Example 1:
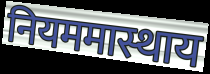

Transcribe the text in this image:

नियममास्थाय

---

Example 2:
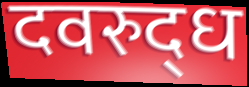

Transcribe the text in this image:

दवरुद्ध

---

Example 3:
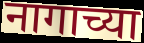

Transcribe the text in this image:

नागाच्या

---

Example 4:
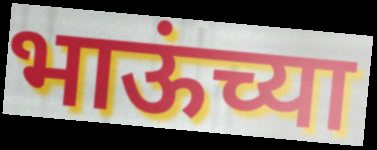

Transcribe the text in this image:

भाऊंच्या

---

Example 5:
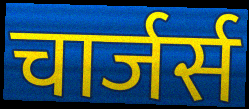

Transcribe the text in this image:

चार्जर्स